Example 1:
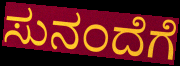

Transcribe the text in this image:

ಸುನಂದೆಗೆ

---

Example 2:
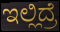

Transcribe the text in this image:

ಇಲ್ಲಿದ್ರೆ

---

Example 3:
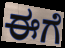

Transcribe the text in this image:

ಈಗೆ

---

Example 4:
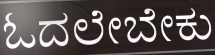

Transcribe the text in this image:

ಓದಲೇಬೇಕು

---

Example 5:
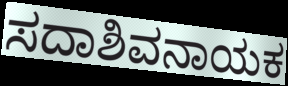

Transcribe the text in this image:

ಸದಾಶಿವನಾಯಕ